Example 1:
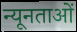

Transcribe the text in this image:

न्यूनताओं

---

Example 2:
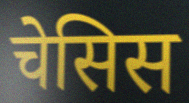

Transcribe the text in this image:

चेसिस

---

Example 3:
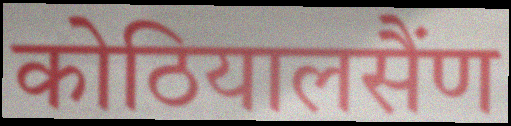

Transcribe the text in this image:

कोठियालसैंण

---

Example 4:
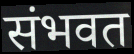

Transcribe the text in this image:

संभवत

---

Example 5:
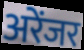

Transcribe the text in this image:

अरेंजर